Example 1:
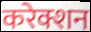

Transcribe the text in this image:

करेक्शन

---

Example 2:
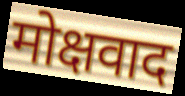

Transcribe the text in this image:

मोक्षवाद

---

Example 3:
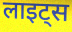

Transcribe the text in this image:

लाइट्स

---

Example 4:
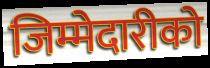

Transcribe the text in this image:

जिम्मेदारीको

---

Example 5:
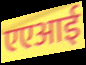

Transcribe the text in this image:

एएआई